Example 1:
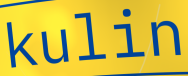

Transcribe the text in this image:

kulin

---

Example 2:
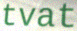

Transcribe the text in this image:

tvat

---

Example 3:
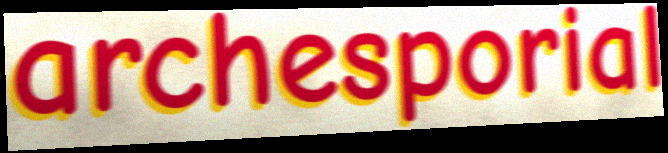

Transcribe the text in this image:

archesporial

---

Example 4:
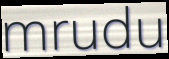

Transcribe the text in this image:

mrudu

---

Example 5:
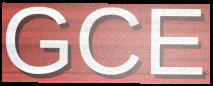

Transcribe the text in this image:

GCE